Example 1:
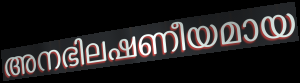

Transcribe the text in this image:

അനഭിലഷണീയമായ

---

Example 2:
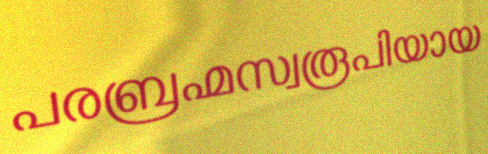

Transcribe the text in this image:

പരബ്രഹ്മസ്വരൂപിയായ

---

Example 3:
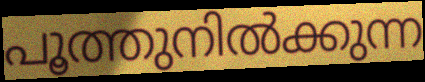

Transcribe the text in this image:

പൂത്തുനിൽക്കുന്ന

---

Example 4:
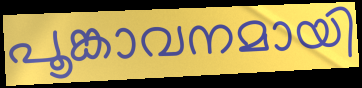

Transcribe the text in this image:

പൂങ്കാവനമായി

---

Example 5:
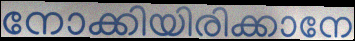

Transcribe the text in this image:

നോക്കിയിരിക്കാനേ